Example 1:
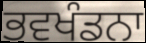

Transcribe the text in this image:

ਭਵਖੰਡਨਾ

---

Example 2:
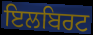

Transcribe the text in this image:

ਇਲਬਿਰਟ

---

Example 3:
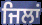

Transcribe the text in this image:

ਜਿਲਾਂ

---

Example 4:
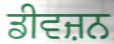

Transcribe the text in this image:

ਡੀਵਜ਼ਨ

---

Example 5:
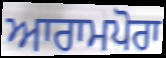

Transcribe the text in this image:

ਆਰਾਮਪੋਰਾ